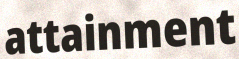
attainment